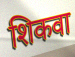
शिकवा